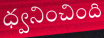
ధ్వనించింది